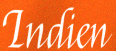
Indien